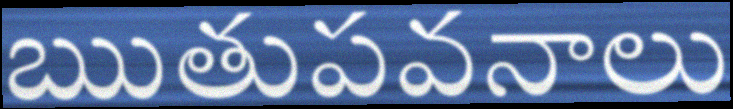
ఋతుపవనాలు